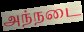
அந்நடை